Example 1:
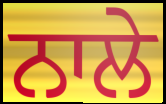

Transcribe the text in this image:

ਨਾਲੇ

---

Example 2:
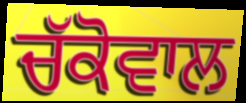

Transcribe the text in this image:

ਚੱਕੋਵਾਲ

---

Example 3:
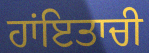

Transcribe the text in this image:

ਹਾਂਇਤਾਚੀ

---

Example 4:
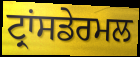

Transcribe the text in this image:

ਟ੍ਰਾਂਸਡੇਰਮਲ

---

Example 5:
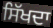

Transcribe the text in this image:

ਸਿੱਖਦਾ